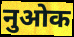
नुओक